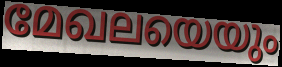
മേഖലയെയും